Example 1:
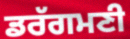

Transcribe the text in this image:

ਡਰੱਗਮਣੀ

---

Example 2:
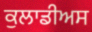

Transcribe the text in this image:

ਕੁਲਾਡੀਅਸ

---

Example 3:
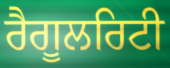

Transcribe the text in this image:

ਰੈਗੂਲਰਿਟੀ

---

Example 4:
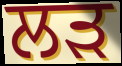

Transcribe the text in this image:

ਲੜ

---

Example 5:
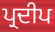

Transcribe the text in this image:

ਪ੍ਰਦੀਪ